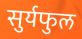
सुर्यफुल